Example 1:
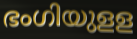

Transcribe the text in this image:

ഭംഗിയുളള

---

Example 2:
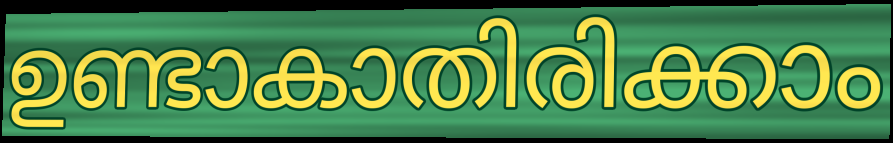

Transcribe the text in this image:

ഉണ്ടാകാതിരിക്കാം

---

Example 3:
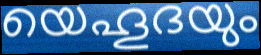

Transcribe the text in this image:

യെഹൂദയും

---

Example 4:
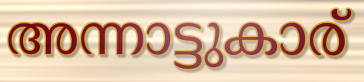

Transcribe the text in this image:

അന്നാട്ടുകാര്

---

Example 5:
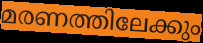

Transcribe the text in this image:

മരണത്തിലേക്കും